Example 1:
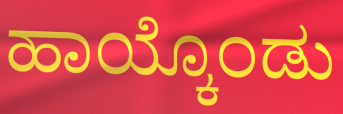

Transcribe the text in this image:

ಹಾಯ್ಕೊಂಡು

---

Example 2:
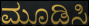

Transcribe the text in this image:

ಮೂಡಿಸಿ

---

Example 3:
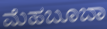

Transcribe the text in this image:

ಮೆಹಬೂಬಾ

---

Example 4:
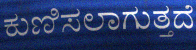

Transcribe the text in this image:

ಕುಣಿಸಲಾಗುತ್ತದೆ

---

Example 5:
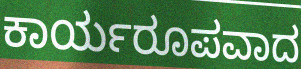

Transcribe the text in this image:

ಕಾರ್ಯರೂಪವಾದ